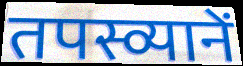
तपस्व्यानें